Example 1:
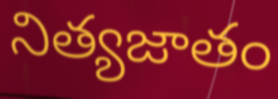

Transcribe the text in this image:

నిత్యజాతం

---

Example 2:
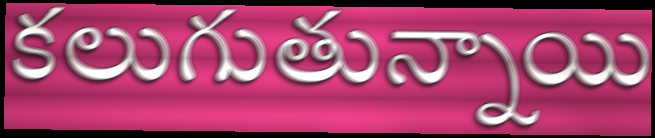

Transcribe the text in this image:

కలుగుతున్నాయి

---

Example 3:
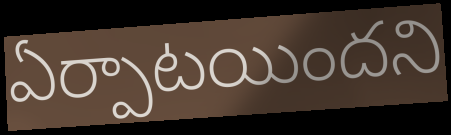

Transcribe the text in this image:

ఏర్పాటయిందని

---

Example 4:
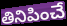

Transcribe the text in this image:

తినిపించే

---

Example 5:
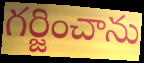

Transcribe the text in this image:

గర్జించాను